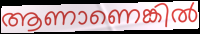
ആണാണെങ്കിൽ